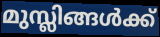
മുസ്ലിങ്ങൾക്ക്